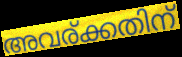
അവര്ക്കതിന്